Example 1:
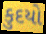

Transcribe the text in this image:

કુદયો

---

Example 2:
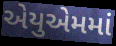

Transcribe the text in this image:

એયુએમમાં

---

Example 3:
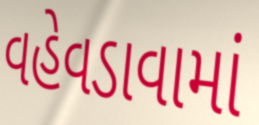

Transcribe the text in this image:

વહેવડાવામાં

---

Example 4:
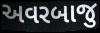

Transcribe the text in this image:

અવરબાજુ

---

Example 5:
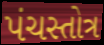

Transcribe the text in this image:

પંચસ્તોત્ર